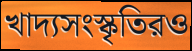
খাদ্যসংস্কৃতিরও